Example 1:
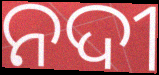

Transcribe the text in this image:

ନଦୀ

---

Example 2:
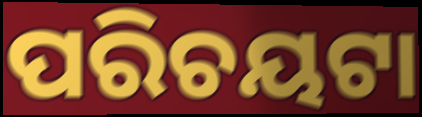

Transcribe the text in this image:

ପରିଚୟଟା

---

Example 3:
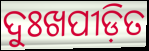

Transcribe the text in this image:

ଦୁଃଖପୀଡ଼ିତ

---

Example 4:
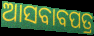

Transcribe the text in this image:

ଆସବାବପତ୍ର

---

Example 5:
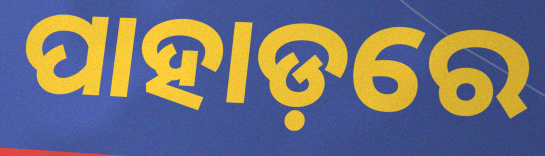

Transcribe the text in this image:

ପାହାଡ଼ରେ